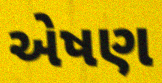
એષણ